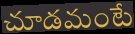
చూడమంటే